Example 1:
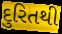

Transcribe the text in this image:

દુરિતથી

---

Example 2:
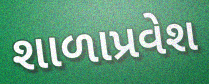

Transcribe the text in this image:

શાળાપ્રવેશ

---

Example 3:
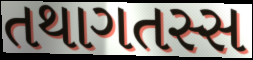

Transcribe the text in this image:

તથાગતસ્સ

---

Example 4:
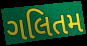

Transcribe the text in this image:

ગલિતમ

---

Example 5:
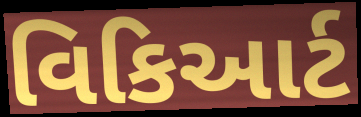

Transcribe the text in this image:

વિકિઆર્ટ